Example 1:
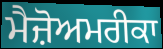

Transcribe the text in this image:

ਮੈਜ਼ੋਅਮਰੀਕਾ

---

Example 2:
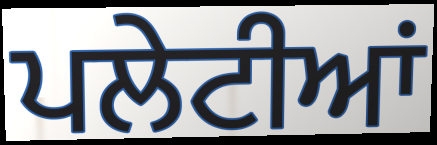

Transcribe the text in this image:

ਪਲੇਟੀਆਂ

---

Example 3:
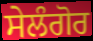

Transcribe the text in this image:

ਸੇਲੰਗੋਰ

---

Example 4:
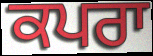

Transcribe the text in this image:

ਕਪਰਾ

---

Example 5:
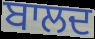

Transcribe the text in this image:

ਬਾਲਦ